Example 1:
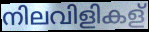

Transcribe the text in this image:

നിലവിളികള്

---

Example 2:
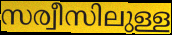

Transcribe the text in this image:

സര്വീസിലുള്ള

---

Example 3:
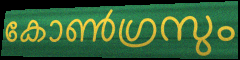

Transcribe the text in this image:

കോൺഗ്രസും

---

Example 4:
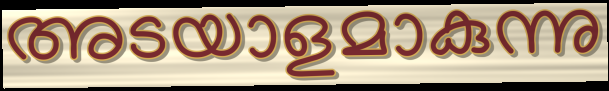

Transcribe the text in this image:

അടയാളമാകുന്നു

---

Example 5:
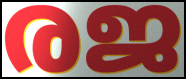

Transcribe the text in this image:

രജ